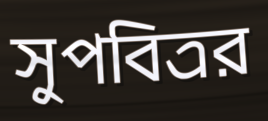
সুপবিত্রর